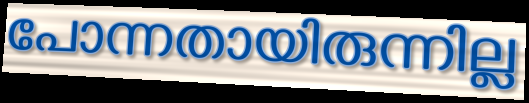
പോന്നതായിരുന്നില്ല